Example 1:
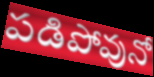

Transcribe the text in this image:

పడిపోవునో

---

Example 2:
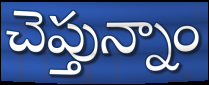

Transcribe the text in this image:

చెప్తున్నాం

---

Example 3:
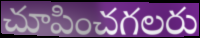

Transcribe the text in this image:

చూపించగలరు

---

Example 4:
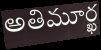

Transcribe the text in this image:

అతిమూర్ఖ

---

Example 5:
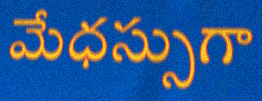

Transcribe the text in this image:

మేధస్సుగా